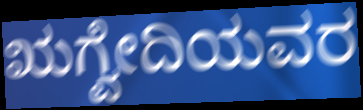
ಋಗ್ವೇದಿಯವರ